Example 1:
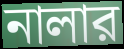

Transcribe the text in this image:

নালার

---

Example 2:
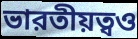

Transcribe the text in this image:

ভারতীয়ত্বও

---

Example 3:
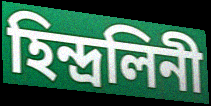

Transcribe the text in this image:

হিন্দ্রলিনী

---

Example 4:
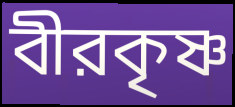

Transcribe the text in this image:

বীরকৃষ্ণ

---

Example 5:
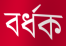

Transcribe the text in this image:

বর্ধক